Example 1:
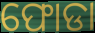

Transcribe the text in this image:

ଫୋଡା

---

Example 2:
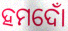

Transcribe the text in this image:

ହମଦୋଁ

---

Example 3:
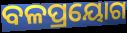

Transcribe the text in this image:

ବଳପ୍ରୟୋଗ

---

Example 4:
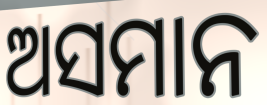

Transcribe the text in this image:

ଅସମାନ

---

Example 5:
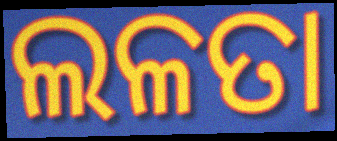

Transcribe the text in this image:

ଲଳତା